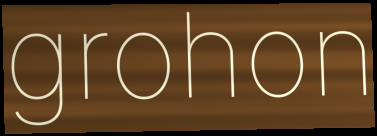
grohon